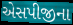
એસપીજીના